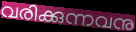
വരിക്കുന്നവനു